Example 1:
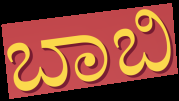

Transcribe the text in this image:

ಬಾಬಿ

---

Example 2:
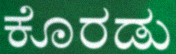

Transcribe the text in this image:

ಕೊರಡು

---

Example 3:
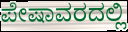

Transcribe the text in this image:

ಪೇಷಾವರದಲ್ಲಿ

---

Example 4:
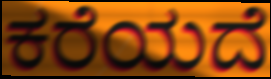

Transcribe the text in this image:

ಕರೆಯದೆ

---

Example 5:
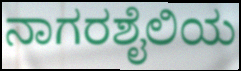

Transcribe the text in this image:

ನಾಗರಶೈಲಿಯ